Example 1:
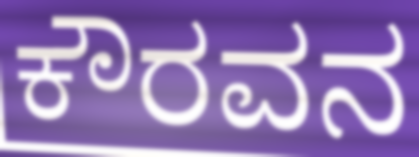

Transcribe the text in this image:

ಕೌರವನ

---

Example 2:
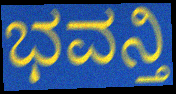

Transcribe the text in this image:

ಭವನ್ತಿ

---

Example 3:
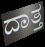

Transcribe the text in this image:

ದಾತ್ತ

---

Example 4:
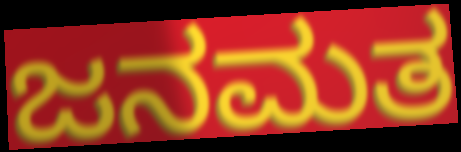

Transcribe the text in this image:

ಜನಮತ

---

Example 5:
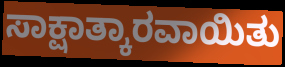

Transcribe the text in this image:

ಸಾಕ್ಷಾತ್ಕಾರವಾಯಿತು